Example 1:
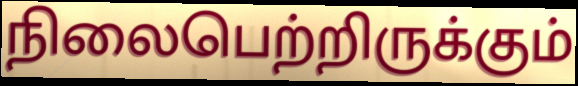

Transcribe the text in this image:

நிலைபெற்றிருக்கும்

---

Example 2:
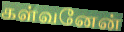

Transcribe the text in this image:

கள்வனேன்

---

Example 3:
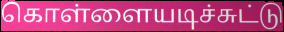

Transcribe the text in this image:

கொள்ளையடிச்சுட்டு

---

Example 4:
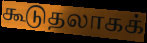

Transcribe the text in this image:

கூடுதலாகக்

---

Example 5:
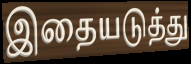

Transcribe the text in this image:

இதையடுத்து